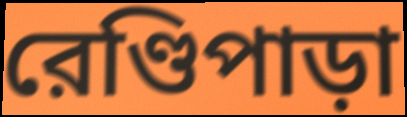
রেণ্ডিপাড়া